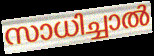
സാധിച്ചാൽ